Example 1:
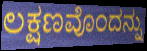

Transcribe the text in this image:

ಲಕ್ಷಣವೊಂದನ್ನು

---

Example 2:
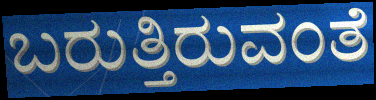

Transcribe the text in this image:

ಬರುತ್ತಿರುವಂತೆ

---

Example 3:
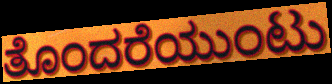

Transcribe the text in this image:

ತೊಂದರೆಯುಂಟು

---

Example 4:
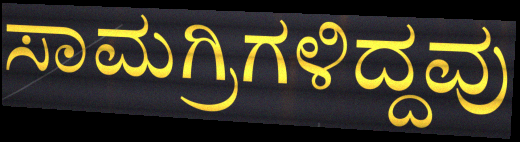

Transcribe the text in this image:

ಸಾಮಗ್ರಿಗಳಿದ್ದವು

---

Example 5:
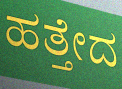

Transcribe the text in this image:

ಹತ್ತೇದ